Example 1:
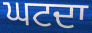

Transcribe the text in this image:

ਘਟਦਾ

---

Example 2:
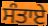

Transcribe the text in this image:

ਸੰਤਾਏ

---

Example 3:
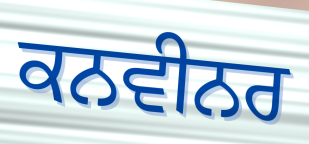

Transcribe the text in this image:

ਕਨਵੀਨਰ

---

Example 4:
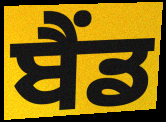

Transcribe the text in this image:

ਬੈੰਡ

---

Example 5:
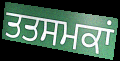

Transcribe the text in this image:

ਤਤਸਮਕਾਂ